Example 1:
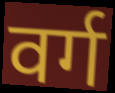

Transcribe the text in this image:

वर्ग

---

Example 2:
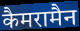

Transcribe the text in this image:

कैमरामैन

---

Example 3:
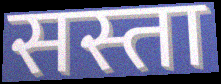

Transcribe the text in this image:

सस्ता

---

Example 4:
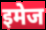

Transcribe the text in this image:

इमेज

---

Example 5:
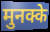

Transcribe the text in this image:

मुनक्के